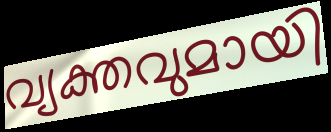
വ്യക്തവുമായി